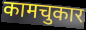
कामचुकार